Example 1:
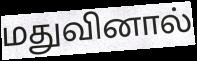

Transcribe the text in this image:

மதுவினால்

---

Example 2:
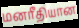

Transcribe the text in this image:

மனரீதியான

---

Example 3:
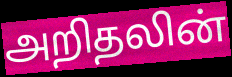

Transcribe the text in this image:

அறிதலின்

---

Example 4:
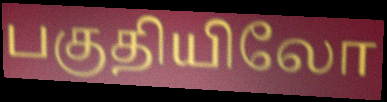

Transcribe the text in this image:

பகுதியிலோ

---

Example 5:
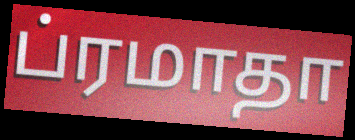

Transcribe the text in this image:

ப்ரமாதா